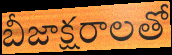
బీజాక్షరాలతో